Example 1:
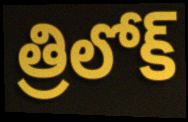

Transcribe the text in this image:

త్రిలోక్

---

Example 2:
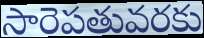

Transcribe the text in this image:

సారెపతువరకు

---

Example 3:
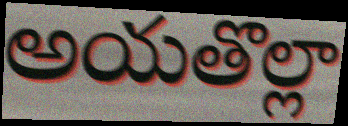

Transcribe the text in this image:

అయతొల్లా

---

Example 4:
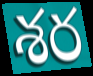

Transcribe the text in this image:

శర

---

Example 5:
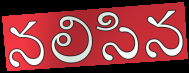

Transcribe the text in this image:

నలిసిన